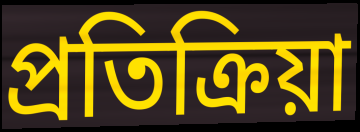
প্রতিক্রিয়া